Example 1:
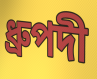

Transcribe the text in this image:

ধ্রুপদী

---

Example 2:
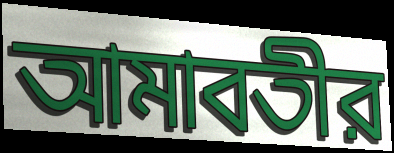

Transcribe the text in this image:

আমাবতীর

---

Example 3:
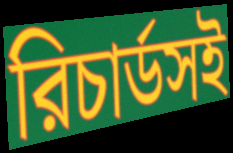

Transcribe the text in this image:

রিচার্ডসই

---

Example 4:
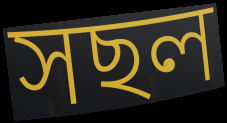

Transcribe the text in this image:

সছল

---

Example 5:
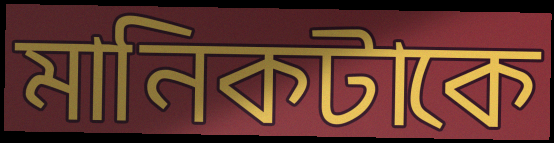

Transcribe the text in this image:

মানিকটাকে